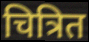
चित्रित